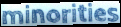
minorities